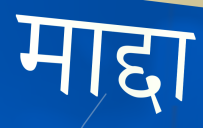
माद्दा